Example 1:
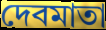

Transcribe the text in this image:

দেবমাতা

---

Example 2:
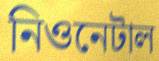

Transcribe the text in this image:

নিওনেটাল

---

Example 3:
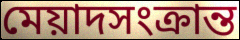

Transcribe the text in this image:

মেয়াদসংক্রান্ত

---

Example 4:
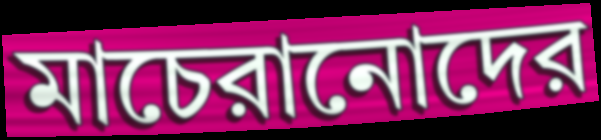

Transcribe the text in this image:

মাচেরানোদের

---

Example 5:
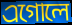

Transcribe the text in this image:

এগোলে